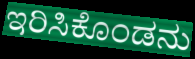
ಇರಿಸಿಕೊಂಡನು